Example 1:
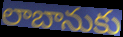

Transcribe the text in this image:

లాబానుకు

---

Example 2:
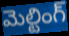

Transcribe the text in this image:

మెల్టింగ్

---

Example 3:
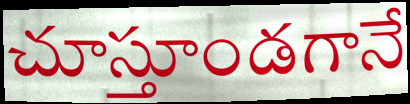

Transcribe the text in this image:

చూస్తూండగానే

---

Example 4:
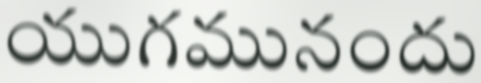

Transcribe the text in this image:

యుగమునందు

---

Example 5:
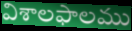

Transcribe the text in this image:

విశాలఫాలము